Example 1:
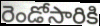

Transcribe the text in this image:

రెండోసారికి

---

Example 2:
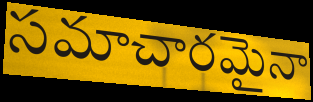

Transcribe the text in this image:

సమాచారమైనా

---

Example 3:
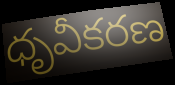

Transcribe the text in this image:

ధృవీకరణ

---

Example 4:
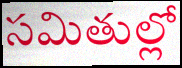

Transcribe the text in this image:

సమితుల్లో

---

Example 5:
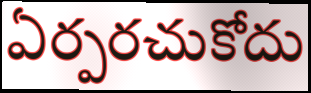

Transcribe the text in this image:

ఏర్పరచుకోదు